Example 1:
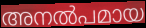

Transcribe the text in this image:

അനൽപമായ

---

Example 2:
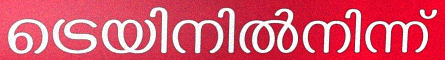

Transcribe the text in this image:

ട്രെയിനിൽനിന്ന്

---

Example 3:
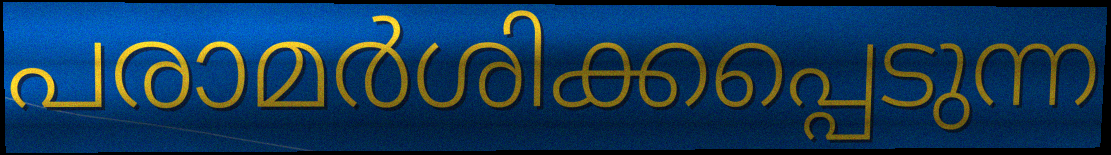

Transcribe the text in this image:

പരാമർശിക്കപ്പെടുന്ന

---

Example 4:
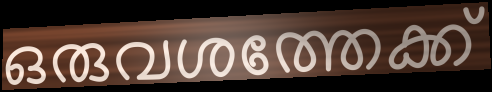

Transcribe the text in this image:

ഒരുവശത്തേക്ക്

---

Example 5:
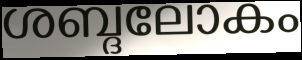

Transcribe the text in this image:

ശബ്ദലോകം